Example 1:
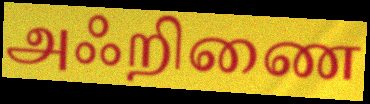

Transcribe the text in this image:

அஃறிணை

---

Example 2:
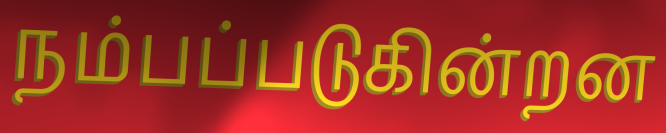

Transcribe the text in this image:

நம்பப்படுகின்றன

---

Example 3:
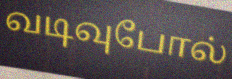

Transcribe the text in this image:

வடிவுபோல்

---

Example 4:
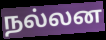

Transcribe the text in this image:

நல்லன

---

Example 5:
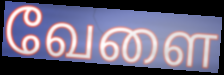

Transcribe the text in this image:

வேளை